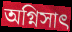
অগ্নিসাৎ